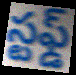
స్టఫ్డ్